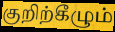
குறிற்கீழும்